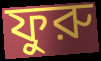
ফুরু